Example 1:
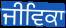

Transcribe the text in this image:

ਜੀਵਿਕਾ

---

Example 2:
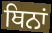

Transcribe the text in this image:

ਥਿਨਾਂ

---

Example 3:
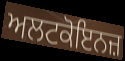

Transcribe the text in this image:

ਅਲਟਕੋਇਨਜ਼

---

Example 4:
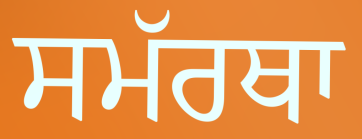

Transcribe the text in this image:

ਸਮੱਰਥਾ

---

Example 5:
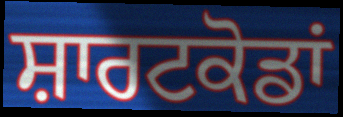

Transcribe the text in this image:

ਸ਼ਾਰਟਕੋਡਾਂ